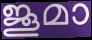
ജൂമാ